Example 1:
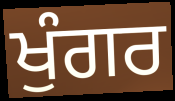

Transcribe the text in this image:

ਖੁੰਗਰ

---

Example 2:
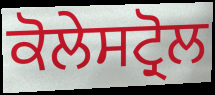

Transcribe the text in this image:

ਕੋਲੇਸਟ੍ਰੋਲ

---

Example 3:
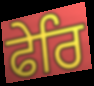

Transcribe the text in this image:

ਫੇਰਿ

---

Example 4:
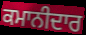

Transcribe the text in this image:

ਕਮਾਨੀਦਾਰ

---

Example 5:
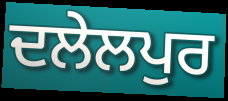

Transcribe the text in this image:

ਦਲੇਲਪੁਰ